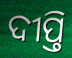
ଦୀପ୍ତି